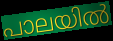
പാലയിൽ